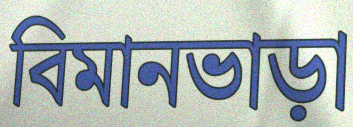
বিমানভাড়া